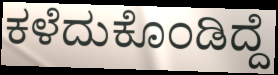
ಕಳೆದುಕೊಂಡಿದ್ದೆ